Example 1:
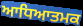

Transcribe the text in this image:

ਆਧਿਆਤਮਕ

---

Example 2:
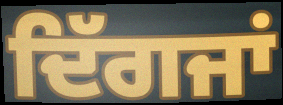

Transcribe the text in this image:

ਦਿੱਗਜਾਂ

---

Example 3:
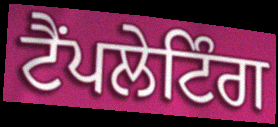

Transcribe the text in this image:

ਟੈਂਪਲੇਟਿੰਗ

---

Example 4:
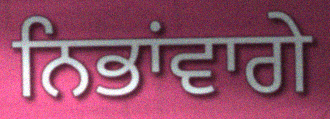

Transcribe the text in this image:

ਨਿਭਾਂਵਾਗੇ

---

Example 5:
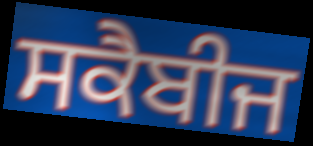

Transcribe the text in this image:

ਸਕੈਬੀਜ